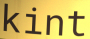
kint